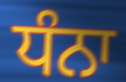
ਧੰਨਾ